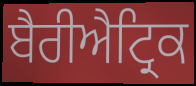
ਬੈਰੀਐਟ੍ਰਿਕ